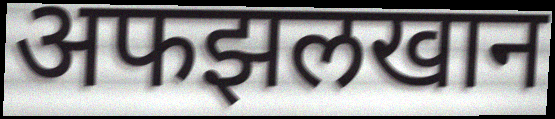
अफझलखान